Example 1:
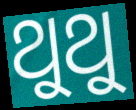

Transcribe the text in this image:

ଥୁଥୁ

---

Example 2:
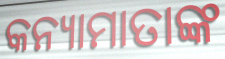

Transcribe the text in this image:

କନ୍ୟାମାତାଙ୍କ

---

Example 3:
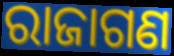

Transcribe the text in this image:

ରାଜାଗଣ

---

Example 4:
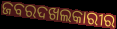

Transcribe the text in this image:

ଜବରଦଖଲକାରୀର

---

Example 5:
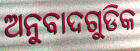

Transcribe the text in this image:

ଅନୁବାଦଗୁଡିକ